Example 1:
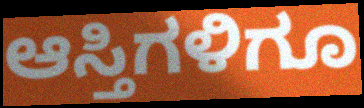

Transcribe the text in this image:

ಆಸ್ತಿಗಳಿಗೂ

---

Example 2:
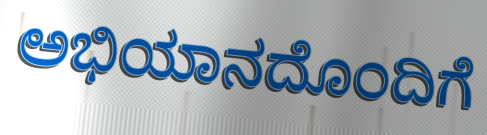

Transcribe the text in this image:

ಅಭಿಯಾನದೊಂದಿಗೆ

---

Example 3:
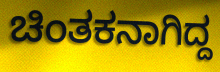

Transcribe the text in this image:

ಚಿಂತಕನಾಗಿದ್ದ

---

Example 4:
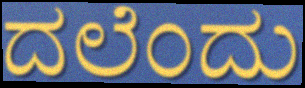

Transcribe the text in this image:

ದಲೆಂದು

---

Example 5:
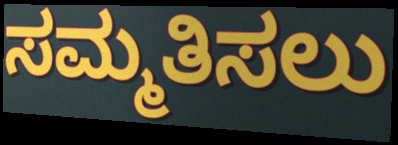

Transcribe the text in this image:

ಸಮ್ಮತಿಸಲು